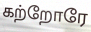
கற்றோரே